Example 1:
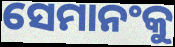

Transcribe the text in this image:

ସେମାନଂକୁ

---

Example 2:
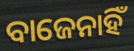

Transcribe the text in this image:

ବାଜେନାହିଁ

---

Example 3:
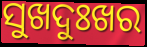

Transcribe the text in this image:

ସୁଖଦୁଃଖର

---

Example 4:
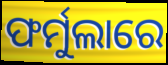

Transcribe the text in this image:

ଫର୍ମୁଲାରେ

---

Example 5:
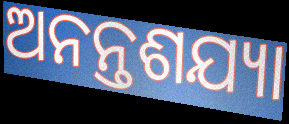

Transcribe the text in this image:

ଅନନ୍ତଶଯ୍ୟା